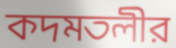
কদমতলীর